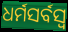
ଧର୍ମସର୍ବସ୍ୱ